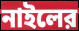
নাইলের